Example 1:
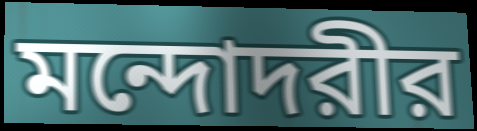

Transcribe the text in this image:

মন্দোদরীর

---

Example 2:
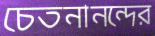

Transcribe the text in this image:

চেতনানন্দের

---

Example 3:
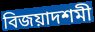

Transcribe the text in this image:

বিজয়াদশমী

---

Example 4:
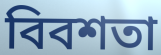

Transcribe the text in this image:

বিবশতা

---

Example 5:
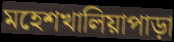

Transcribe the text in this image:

মহেশখালিয়াপাড়া